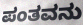
ಪಂತವನು